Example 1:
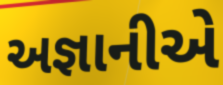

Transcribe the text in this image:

અજ્ઞાનીએ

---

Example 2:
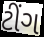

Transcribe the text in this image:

ટીંગ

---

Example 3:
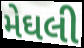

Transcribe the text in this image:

મેઘલી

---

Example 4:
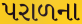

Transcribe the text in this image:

પરાળના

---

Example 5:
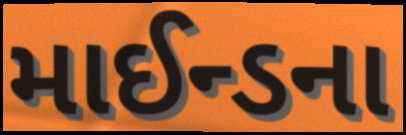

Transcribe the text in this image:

માઈન્ડના